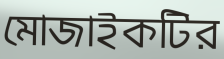
মোজাইকটির